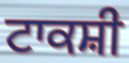
ਟਾਕਸ਼ੀ